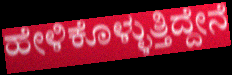
ಹೇಳಿಕೊಳ್ಳುತ್ತಿದ್ದೇನೆ